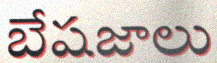
బేషజాలు